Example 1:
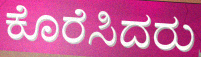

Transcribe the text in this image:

ಕೊರೆಸಿದರು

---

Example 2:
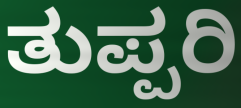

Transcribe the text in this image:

ತುಪ್ಪರಿ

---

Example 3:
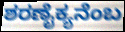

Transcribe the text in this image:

ಶರಣೈಕ್ಯನೆಂಬ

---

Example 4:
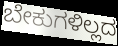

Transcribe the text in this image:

ಬೇಕುಗಳಿಲ್ಲದ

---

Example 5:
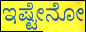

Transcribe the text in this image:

ಇಷ್ಟೇನೋ